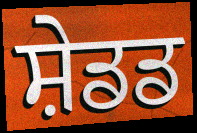
ਸ਼ੇਡਡ